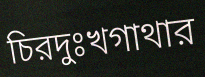
চিরদুঃখগাথার